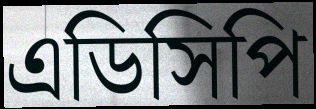
এডিসিপি